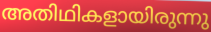
അതിഥികളായിരുന്നു